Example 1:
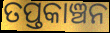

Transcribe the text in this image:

ତପ୍ତକାଞ୍ଚନ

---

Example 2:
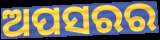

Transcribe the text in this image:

ଅପସରର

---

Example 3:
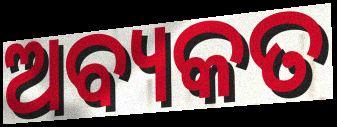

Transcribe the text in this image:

ଅବ୍ୟକତ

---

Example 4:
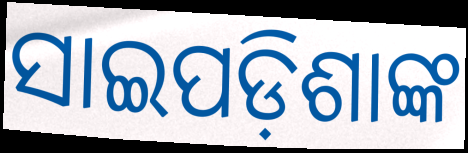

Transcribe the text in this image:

ସାଇପଡ଼ିଶାଙ୍କ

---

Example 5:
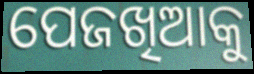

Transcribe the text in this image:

ପେଜଖିଆକୁ